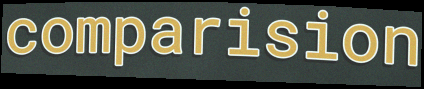
comparision